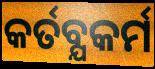
କର୍ତବ୍ଯକର୍ମ